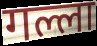
गल्ला